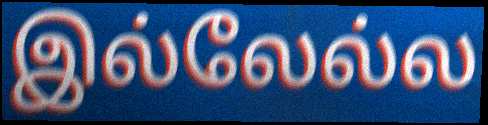
இல்லேல்ல